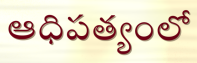
ఆధిపత్యంలో